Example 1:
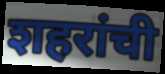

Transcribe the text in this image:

शहरांची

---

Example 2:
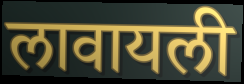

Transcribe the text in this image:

लावायली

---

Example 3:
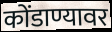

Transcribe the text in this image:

कोंडाण्यावर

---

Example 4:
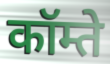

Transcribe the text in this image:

कॉम्ते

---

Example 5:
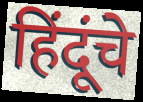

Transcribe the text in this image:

हिंदूंचे